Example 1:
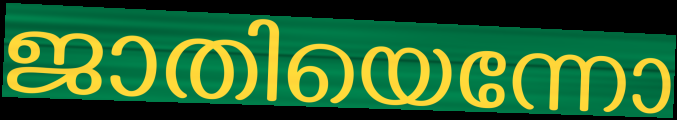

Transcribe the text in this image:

ജാതിയെന്നോ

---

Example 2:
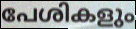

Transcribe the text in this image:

പേശികളും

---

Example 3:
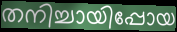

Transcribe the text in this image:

തനിച്ചായിപ്പോയ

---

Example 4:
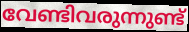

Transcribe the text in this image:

വേണ്ടിവരുന്നുണ്ട്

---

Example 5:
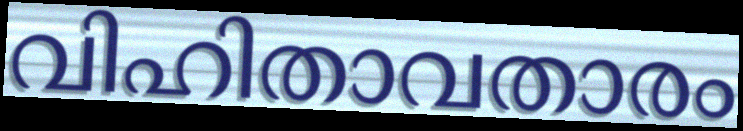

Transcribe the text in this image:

വിഹിതാവതാരം